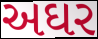
અઘર